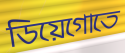
ডিয়েগোতে